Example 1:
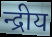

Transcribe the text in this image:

न्द्रीय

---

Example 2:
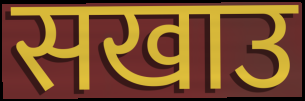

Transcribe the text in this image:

सखाउ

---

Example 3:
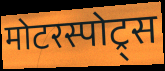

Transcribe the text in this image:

मोटरस्पोट्र्स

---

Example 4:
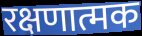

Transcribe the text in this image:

रक्षणात्मक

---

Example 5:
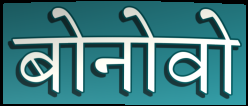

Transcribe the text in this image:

बोनोवो